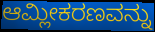
ಆಮ್ಲೀಕರಣವನ್ನು